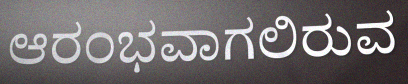
ಆರಂಭವಾಗಲಿರುವ